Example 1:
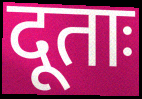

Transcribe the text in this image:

दूताः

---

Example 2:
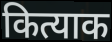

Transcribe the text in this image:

कित्याक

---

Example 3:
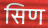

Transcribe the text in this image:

सिण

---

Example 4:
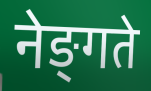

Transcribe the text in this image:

नेङ्गते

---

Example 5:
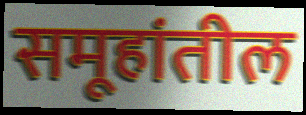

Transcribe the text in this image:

समूहांतील